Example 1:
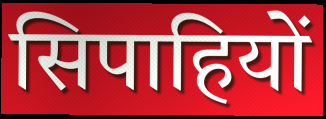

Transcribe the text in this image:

सिपाहियों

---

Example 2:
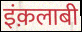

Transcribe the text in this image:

इंक़लाबी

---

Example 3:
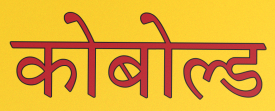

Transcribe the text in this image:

कोबोल्ड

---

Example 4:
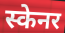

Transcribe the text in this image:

स्केनर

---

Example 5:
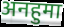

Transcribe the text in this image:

अनहुमा